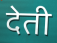
देती